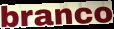
branco